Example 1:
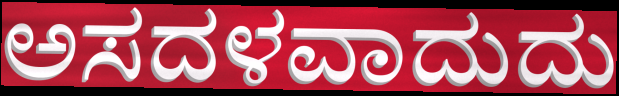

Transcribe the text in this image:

ಅಸದಳವಾದುದು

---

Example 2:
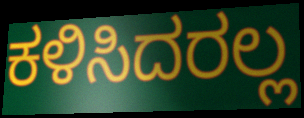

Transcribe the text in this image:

ಕಳಿಸಿದರಲ್ಲ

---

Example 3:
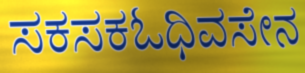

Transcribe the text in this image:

ಸಕಸಕಓಧಿವಸೇನ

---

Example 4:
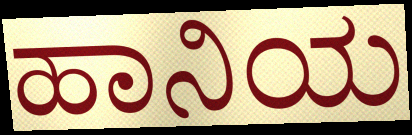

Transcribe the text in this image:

ಹಾನಿಯ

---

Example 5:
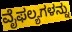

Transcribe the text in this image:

ವೈಫಲ್ಯಗಳನ್ನು